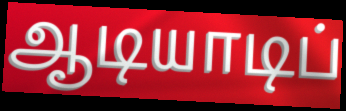
ஆடியாடிப்